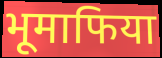
भूमाफिया